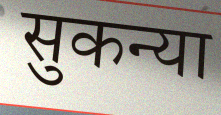
सुकन्या